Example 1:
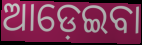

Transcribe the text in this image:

ଆଡ଼େଇବା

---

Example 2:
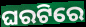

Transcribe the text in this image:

ଘରଟିରେ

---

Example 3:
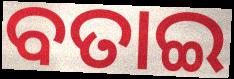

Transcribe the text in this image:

ବତାଇ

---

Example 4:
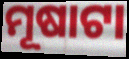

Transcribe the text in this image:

ମୂଷାଟା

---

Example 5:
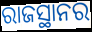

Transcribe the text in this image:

ରାଜସ୍ଥାନର